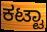
ಕಟ್ಟಾ